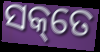
ସକ୍‌ତେ